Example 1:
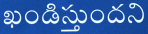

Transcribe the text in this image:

ఖండిస్తుందని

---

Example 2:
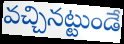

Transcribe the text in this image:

వచ్చినట్టుండే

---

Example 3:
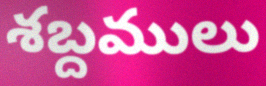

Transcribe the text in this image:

శబ్దములు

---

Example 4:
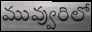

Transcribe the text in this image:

మువ్వురిలో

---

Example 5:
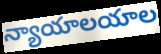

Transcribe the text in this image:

న్యాయాలయాల